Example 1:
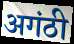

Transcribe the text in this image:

अगंठी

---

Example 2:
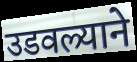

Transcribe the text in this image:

उडवल्याने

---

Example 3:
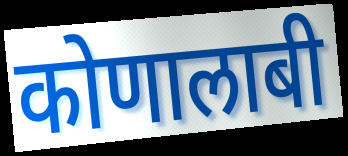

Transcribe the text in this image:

कोणालाबी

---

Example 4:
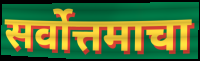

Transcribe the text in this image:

सर्वोत्तमाचा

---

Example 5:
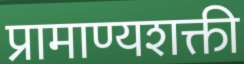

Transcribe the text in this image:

प्रामाण्यशक्ती